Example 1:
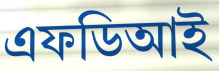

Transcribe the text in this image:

এফডিআই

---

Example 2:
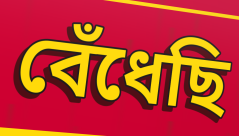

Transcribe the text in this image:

বেঁধেছি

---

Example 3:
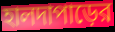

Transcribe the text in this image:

হালদাপাড়ের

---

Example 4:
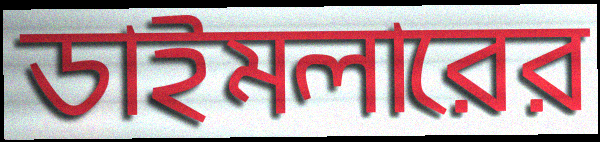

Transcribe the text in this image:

ডাইমলারের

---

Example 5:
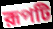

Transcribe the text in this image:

রূপটি